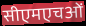
सीएमएचओं